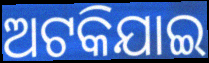
ଅଟକିଯାଇ